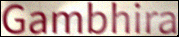
Gambhira